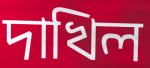
দাখিল